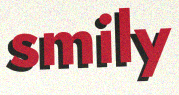
smily